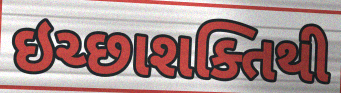
ઇચ્છાશક્તિથી